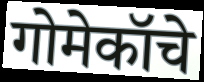
गोमेकॉचे